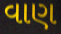
વાણ